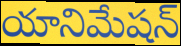
యానిమేషన్